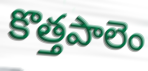
కొత్తపాలెం